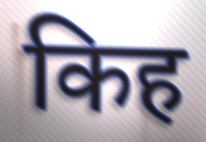
किह